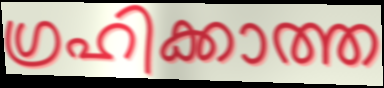
ഗ്രഹിക്കാത്ത